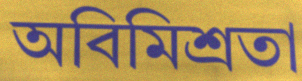
অবিমিশ্রতা